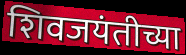
शिवजयंतीच्या